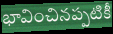
భావించినప్పటికీ